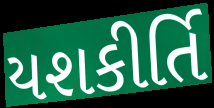
યશકીર્તિ